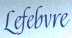
Lefebvre